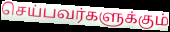
செய்பவர்களுக்கும்